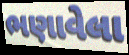
ભણાવેલા